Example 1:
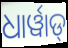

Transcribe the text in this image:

ଧାର୍ୱାଡ୍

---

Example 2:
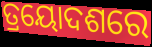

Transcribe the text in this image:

ତ୍ରୟୋଦଶରେ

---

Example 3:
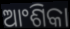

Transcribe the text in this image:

ଆଂଶିକା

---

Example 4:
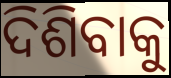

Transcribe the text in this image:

ଦିଶିବାକୁ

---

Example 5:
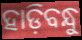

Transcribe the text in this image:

ହାଡ଼ିବନ୍ଧୁ